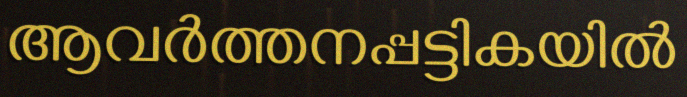
ആവർത്തനപ്പട്ടികയിൽ